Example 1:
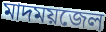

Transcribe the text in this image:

মাদময়জেল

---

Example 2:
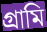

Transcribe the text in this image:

গ্রামি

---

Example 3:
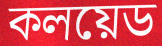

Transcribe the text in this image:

কলয়েড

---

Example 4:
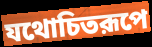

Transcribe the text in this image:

যথোচিতরূপে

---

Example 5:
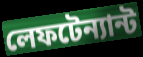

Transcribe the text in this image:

লেফটেন্যান্ট